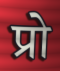
प्रो